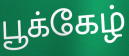
பூக்கேழ்